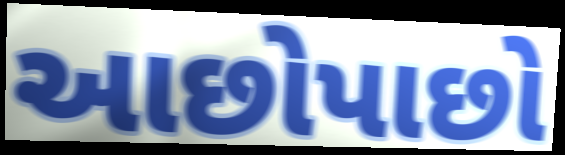
આછોપાછો